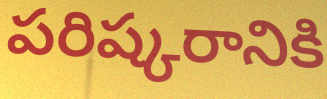
పరిష్కరానికి